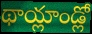
థాయ్లాండ్లో